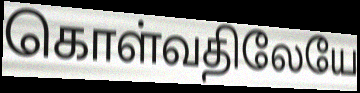
கொள்வதிலேயே